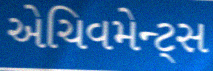
એચિવમેન્ટ્સ